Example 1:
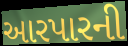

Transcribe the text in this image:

આરપારની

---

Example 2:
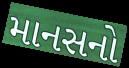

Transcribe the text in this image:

માનસનો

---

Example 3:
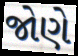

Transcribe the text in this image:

જોણે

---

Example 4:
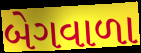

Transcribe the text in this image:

બેગવાળા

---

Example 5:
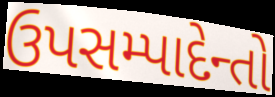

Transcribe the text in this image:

ઉપસમ્પાદેન્તો